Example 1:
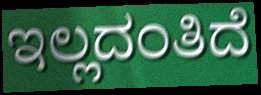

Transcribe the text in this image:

ಇಲ್ಲದಂತಿದೆ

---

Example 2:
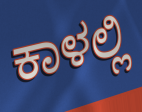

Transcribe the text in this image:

ಕಾಳಲ್ಲಿ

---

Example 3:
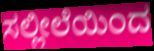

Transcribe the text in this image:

ಸಲ್ಲೀಲೆಯಿಂದ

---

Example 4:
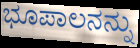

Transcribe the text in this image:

ಭೂಪಾಲನನ್ನು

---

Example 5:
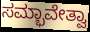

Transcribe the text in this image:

ಸಮ್ಭಾವೇತ್ವಾ